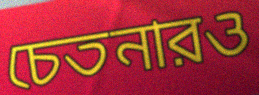
চেতনারও